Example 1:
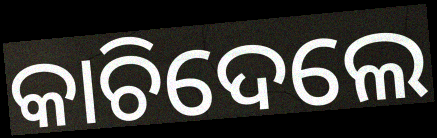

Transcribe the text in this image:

କାଚିଦେଲେ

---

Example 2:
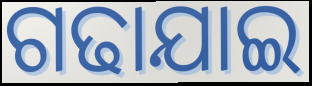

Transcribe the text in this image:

ଗଢାଯାଇ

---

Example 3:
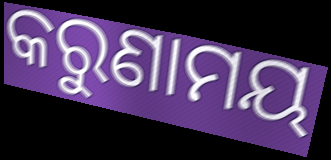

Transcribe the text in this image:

କରୁଣାମୟ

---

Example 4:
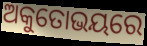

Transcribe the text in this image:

ଅକୁତୋଭୟରେ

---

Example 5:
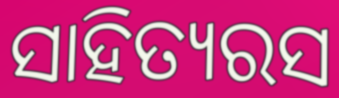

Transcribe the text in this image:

ସାହିତ୍ୟରସ